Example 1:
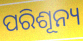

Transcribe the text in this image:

ପରିଶୂନ୍ୟ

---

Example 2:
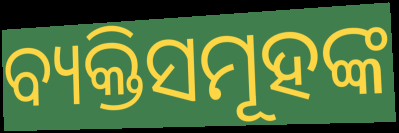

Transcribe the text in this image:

ବ୍ୟକ୍ତିସମୂହଙ୍କ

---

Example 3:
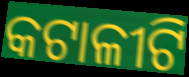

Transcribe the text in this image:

କଟାଳୀଟି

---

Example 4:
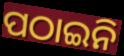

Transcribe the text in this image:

ପଠାଇନି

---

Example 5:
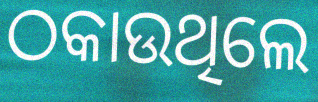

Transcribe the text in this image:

ଠକାଉଥିଲେ